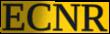
ECNR